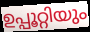
ഉപ്പൂറ്റിയും